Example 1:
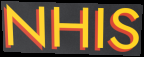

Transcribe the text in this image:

NHIS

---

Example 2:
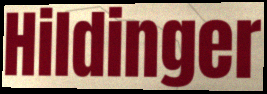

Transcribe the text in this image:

Hildinger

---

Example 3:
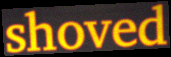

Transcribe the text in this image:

shoved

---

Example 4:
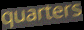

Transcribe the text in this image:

quarters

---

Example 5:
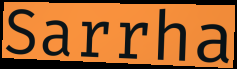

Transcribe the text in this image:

Sarrha